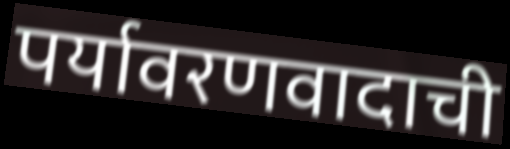
पर्यावरणवादाची